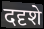
ददृशे